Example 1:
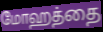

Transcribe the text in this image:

மோஹத்தை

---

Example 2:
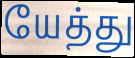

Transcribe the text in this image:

யேத்து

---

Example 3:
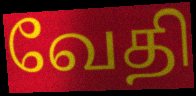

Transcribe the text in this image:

வேதி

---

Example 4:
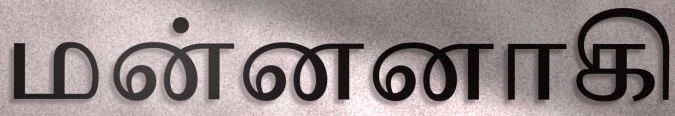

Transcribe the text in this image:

மன்னனாகி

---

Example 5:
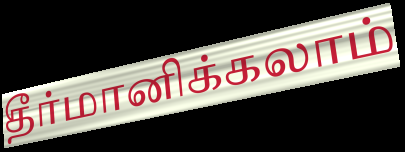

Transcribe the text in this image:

தீர்மானிக்கலாம்